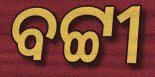
ବଟ୍ଟୀ